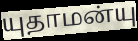
யுதாமன்யு